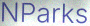
NParks